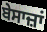
ਬੇਸਾਜ਼ਾਂ